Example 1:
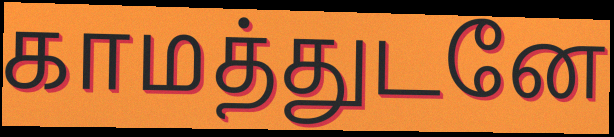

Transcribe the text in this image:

காமத்துடனே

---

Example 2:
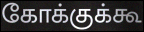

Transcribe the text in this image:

கோக்குக்கூ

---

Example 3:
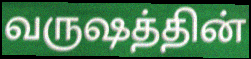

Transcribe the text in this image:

வருஷத்தின்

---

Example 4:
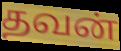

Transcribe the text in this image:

தவன்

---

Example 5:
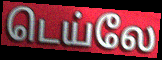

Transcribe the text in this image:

டெய்லே